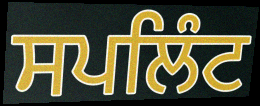
ਸਪਲਿੰਟ